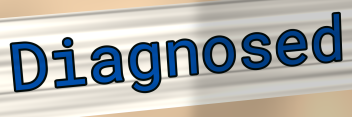
Diagnosed